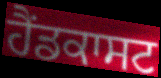
ਹੈਂਡਕਾਸਟ